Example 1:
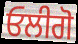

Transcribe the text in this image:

ਓਲੀਗੋ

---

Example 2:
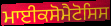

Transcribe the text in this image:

ਮਾਈਕਸੋਮੈਟੋਸਿਸ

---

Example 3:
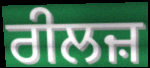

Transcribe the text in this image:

ਰੀਲਜ਼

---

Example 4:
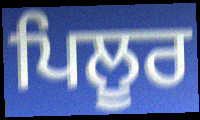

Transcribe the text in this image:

ਪਿਲੂਰ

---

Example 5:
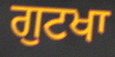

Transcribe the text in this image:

ਗੁਟਖਾ